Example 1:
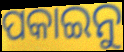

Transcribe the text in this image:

ପକାଇନୁ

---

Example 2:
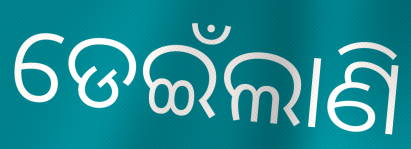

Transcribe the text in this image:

ଡେଇଁଲାଣି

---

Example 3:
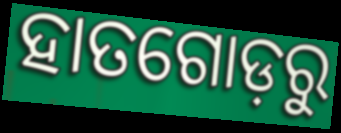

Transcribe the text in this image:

ହାତଗୋଡ଼ରୁ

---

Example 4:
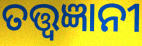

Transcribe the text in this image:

ତତ୍ତ୍ଵଜ୍ଞାନୀ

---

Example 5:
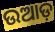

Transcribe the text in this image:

ଉଆଡ଼